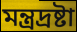
মন্ত্রদ্রষ্টা